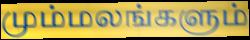
மும்மலங்களும்